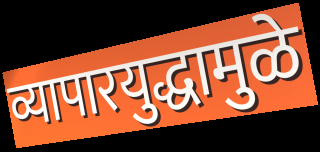
व्यापारयुद्धामुळे